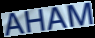
AHAM